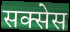
सक्सेस